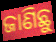
ଜାଣିଛୁ